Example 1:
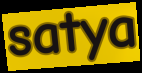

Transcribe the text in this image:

satya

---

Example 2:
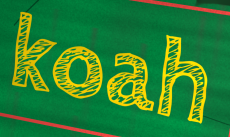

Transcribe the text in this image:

koah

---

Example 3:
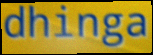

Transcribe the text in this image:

dhinga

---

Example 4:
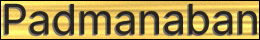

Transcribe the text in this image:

Padmanaban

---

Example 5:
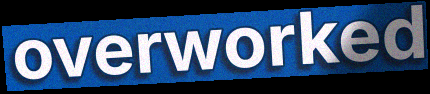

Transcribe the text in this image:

overworked